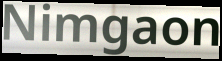
Nimgaon